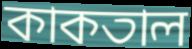
কাকতাল